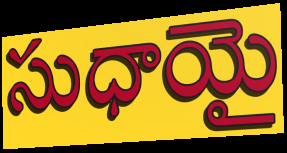
సుధాయై